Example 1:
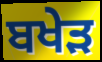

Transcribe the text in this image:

ਬਖੇੜ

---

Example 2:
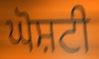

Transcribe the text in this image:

ਘੋਸ਼ਟੀ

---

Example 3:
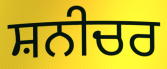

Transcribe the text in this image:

ਸ਼ਨੀਚਰ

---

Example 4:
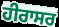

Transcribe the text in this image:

ਹੀਰਾਸਰ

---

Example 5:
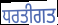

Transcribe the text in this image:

ਧਰਤੀਗਤ